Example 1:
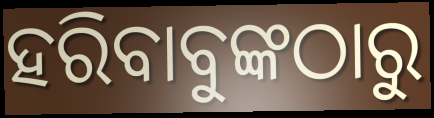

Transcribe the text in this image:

ହରିବାବୁଙ୍କଠାରୁ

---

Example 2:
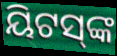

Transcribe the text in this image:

ୟିଟସ୍‌ଙ୍କ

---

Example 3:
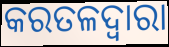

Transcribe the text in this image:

କରତଳଦ୍ଵାରା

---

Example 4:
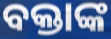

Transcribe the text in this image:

ବକ୍ତାଙ୍କ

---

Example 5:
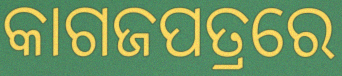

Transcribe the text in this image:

କାଗଜପତ୍ରରେ